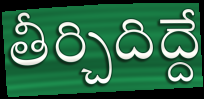
తీర్చిదిద్దే